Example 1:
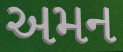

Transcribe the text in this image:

અમન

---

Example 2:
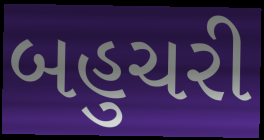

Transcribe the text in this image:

બહુચરી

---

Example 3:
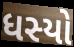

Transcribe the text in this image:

ધસ્યો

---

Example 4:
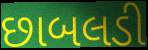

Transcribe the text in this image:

છાબલડી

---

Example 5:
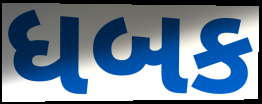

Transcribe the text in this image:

ધબક